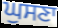
ਘੁਸਣਾ